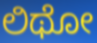
ಲಿಥೋ